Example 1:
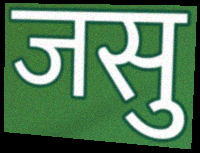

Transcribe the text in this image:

जसु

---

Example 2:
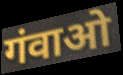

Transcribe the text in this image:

गंवाओ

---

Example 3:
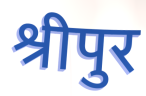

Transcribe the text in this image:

श्रीपुर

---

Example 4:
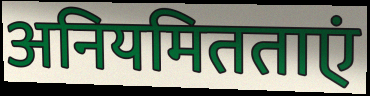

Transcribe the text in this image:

अनियमितताएं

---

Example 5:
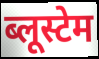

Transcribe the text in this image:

ब्लूस्टेम